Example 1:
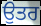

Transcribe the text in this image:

ਉਤਰ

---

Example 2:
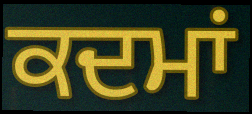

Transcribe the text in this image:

ਕਦਮਾਂ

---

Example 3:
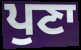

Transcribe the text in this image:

ਪੁਣਾ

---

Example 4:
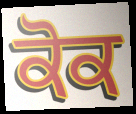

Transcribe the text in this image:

ਕੋਕ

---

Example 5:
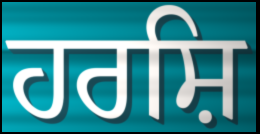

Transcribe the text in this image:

ਹਰਸ਼ਿ